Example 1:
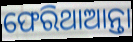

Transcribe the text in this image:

ଫେରିଥାଆନ୍ତା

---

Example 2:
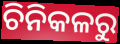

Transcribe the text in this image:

ଚିନିକଳରୁ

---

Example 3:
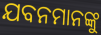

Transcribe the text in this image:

ଯବନମାନଙ୍କୁ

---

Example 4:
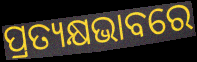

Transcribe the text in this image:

ପ୍ରତ୍ୟକ୍ଷଭାବରେ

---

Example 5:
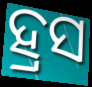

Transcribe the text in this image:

ହ୍ରସ